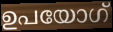
ഉപയോഗ്